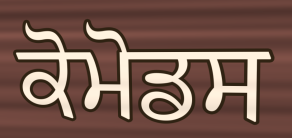
ਕੋਮੋਡਸ